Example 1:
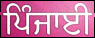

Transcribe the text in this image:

ਪਿੰਜਾਈ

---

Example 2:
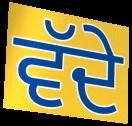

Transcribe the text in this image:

ਵੱਦੇ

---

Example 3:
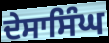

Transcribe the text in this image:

ਦੇਸਾਸਿੰਘ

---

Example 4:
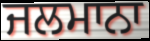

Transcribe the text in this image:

ਜਲਮਾਨਾ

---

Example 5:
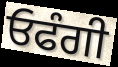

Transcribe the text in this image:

ਓਫੰਗੀ